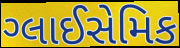
ગ્લાઈસેમિક